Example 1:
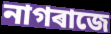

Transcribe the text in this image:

নাগৰাজে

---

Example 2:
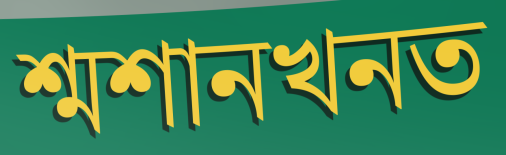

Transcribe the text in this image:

শ্মশানখনত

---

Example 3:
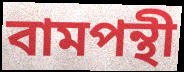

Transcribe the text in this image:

বামপন্থী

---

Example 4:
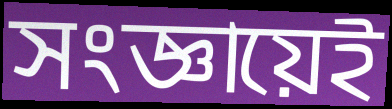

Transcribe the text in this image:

সংজ্ঞায়েই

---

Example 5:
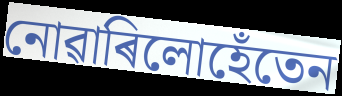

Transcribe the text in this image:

নোৱাৰিলোহেঁতেন